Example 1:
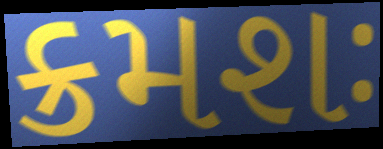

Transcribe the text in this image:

ક્રમશઃ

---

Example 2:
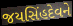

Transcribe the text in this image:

જયસિંહદેવને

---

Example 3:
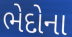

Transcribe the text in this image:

ભેદોના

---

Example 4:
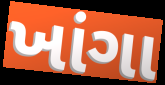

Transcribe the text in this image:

ખાંગા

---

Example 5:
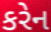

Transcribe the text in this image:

કરેન